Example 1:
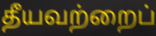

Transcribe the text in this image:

தீயவற்றைப்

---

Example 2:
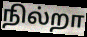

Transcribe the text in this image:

நில்றா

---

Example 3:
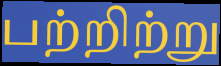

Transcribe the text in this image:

பற்றிற்று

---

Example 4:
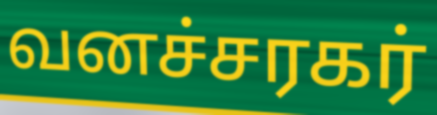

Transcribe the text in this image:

வனச்சரகர்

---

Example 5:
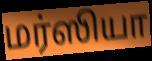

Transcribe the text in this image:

மர்ஸியா